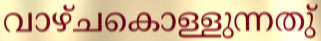
വാഴ്ചകൊള്ളുന്നതു്